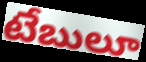
టేబులూ